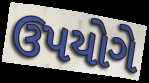
ઉપયોગે